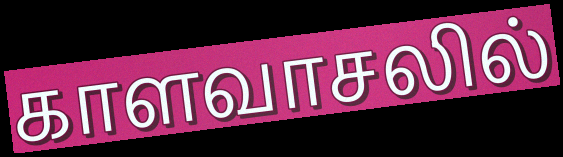
காளவாசலில்